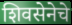
शिवसेनेचे